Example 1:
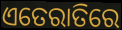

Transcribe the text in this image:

ଏତେରାତିରେ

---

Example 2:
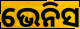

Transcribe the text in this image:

ଭେନିସ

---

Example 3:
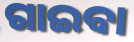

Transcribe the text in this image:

ଗାଇବା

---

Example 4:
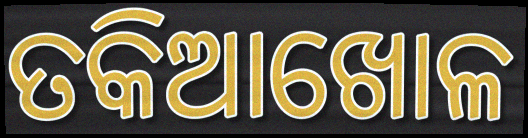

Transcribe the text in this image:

ତକିଆଖୋଳ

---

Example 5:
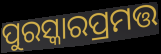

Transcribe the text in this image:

ପୁରସ୍କାରପ୍ରମତ୍ତ